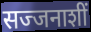
सज्जनाशीं